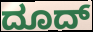
ದೂದ್